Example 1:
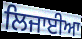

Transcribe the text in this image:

ਲਿਜਾਈਆ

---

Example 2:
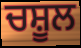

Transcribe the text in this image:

ਚਸ਼ੂਲ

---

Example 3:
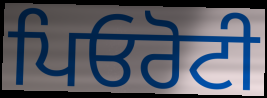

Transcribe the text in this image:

ਪਿਓਰੋਟੀ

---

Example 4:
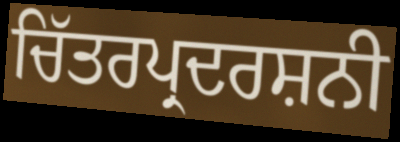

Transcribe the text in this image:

ਚਿੱਤਰਪ੍ਰਦਰਸ਼ਨੀ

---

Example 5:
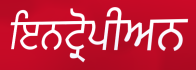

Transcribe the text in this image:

ਇਨਟ੍ਰੋਪੀਅਨ